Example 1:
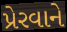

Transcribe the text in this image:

પ્રેરવાને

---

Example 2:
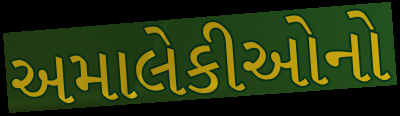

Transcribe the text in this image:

અમાલેકીઓનો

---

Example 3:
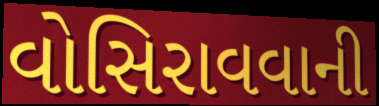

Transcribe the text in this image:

વોસિરાવવાની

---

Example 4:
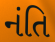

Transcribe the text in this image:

નંતિ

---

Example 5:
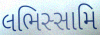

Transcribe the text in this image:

લભિસ્સામિ